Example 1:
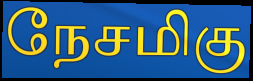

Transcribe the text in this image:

நேசமிகு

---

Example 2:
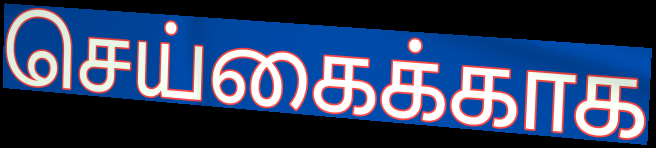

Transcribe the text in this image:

செய்கைக்காக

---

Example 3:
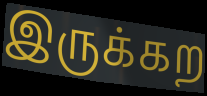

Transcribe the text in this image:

இருக்கற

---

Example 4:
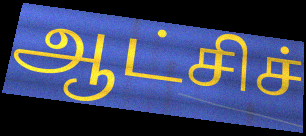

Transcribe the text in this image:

ஆட்சிச்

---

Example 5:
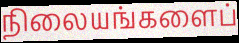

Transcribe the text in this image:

நிலையங்களைப்